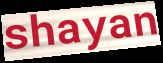
shayan